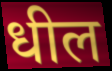
धील